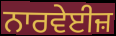
ਨਾਰਵੇਈਜ਼